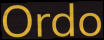
Ordo